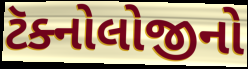
ટૅક્નોલોજીનો